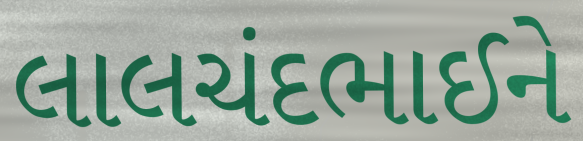
લાલચંદભાઈને